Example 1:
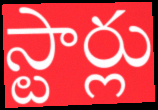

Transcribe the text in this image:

స్టార్లు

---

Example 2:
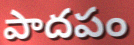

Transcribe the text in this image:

పాదపం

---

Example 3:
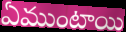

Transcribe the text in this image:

ఏముంటాయి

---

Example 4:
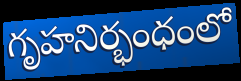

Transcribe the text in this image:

గృహనిర్భంధంలో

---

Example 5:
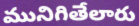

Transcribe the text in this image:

మునిగితేలారు